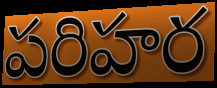
పరిహర